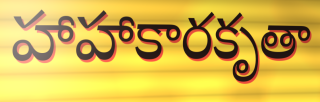
హాహాకారకృతా